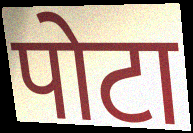
पोटा